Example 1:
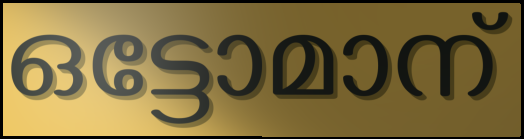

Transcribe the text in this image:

ഒട്ടോമാന്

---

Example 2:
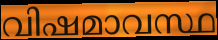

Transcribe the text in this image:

വിഷമാവസ്ഥ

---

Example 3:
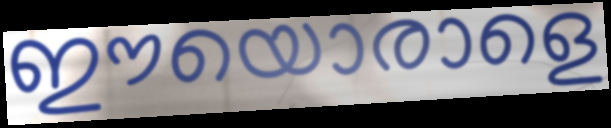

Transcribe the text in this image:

ഈയൊരാളെ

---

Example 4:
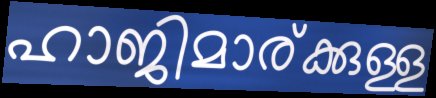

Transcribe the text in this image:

ഹാജിമാര്ക്കുള്ള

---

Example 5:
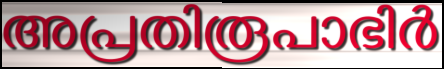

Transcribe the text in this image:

അപ്രതിരൂപാഭിർ